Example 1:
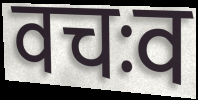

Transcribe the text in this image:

वचःव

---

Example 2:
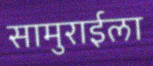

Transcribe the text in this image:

सामुराईला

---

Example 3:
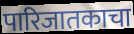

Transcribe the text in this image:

पारिजातकाचा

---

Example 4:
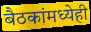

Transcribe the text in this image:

बैठकांमध्येही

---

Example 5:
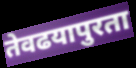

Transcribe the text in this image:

तेवढयापुरता